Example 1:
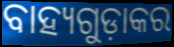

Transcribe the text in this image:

ବାହ୍ୟଗୁଡ଼ାକର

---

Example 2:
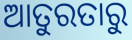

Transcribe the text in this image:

ଆତୁରତାରୁ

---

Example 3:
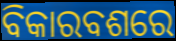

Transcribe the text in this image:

ବିକାରବଶରେ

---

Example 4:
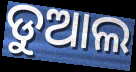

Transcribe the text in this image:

ଡୁଆଲ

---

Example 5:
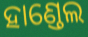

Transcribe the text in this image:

ହାଣ୍ଡେଲ